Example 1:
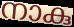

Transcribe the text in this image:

നാകു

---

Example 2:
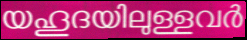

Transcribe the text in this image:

യഹൂദയിലുള്ളവർ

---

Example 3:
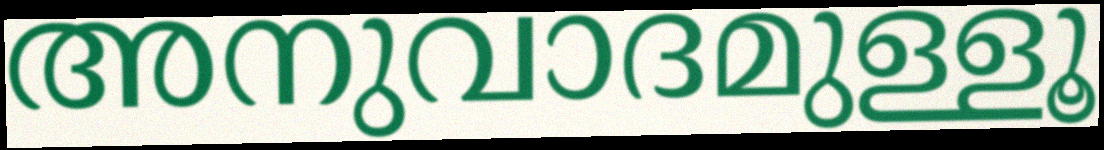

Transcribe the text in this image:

അനുവാദമുള്ളൂ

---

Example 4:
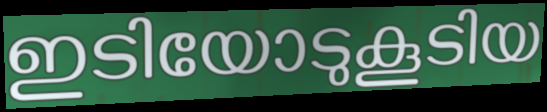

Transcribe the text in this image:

ഇടിയോടുകൂടിയ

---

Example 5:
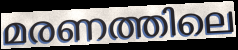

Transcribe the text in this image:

മരണത്തിലെ